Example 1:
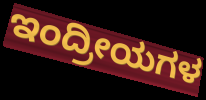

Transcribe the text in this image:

ಇಂದ್ರೀಯಗಳ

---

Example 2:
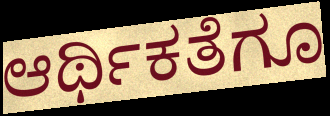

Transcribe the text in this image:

ಆರ್ಥಿಕತೆಗೂ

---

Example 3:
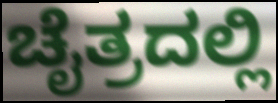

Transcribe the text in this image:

ಚೈತ್ರದಲ್ಲಿ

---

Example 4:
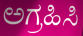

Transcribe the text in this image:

ಅಗ್ರಹಿಸಿ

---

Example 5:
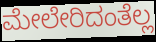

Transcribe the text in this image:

ಮೇಲೇರಿದಂತೆಲ್ಲ